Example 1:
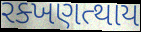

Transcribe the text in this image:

રક્ખણત્થાય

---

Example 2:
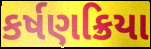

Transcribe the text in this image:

કર્ષણક્રિયા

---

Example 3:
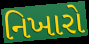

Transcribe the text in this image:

નિખારો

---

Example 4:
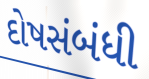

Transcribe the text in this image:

દોષસંબંધી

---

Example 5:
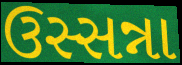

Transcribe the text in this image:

ઉસ્સન્ના